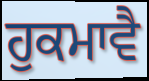
ਹੁਕਮਾਵੈ